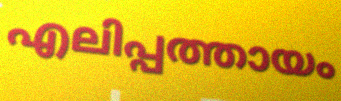
എലിപ്പത്തായം